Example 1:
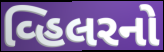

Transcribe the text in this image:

વ્હિલરનો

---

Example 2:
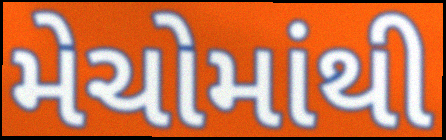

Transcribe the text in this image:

મેચોમાંથી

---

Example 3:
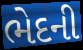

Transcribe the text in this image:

ભેદની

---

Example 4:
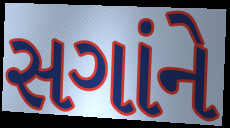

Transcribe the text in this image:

સગાંને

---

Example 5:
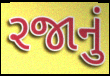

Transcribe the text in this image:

રજાનું